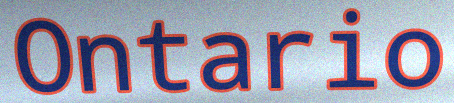
Ontario